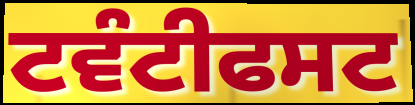
ਟਵੰਟੀਫਸਟ